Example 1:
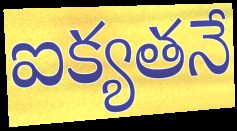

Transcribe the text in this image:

ఐక్యతనే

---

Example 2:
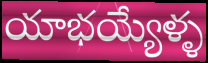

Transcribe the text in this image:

యాభయ్యేళ్ళ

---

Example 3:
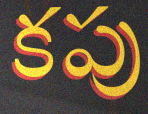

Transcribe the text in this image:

కపు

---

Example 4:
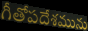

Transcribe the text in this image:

గీతోపదేశమును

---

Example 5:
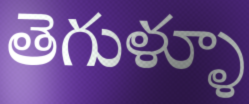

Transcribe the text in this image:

తెగుళ్ళూ